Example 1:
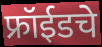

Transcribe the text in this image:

फ्रॉईडचे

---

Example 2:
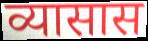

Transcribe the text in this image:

व्यासास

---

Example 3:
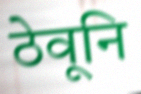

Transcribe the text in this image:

ठेवूनि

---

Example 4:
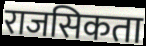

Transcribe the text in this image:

राजसिकता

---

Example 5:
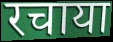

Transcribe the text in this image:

रचाया